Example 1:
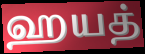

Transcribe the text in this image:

ஹயத்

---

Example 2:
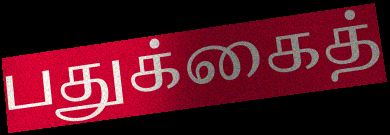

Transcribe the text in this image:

பதுக்கைத்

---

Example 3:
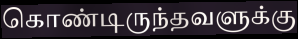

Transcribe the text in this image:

கொண்டிருந்தவளுக்கு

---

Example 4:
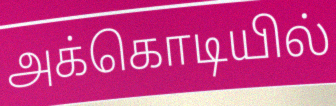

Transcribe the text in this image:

அக்கொடியில்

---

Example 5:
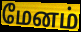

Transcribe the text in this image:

மேனம்